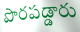
పొరపడ్డారు